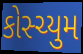
કોસ્ચ્યુમ